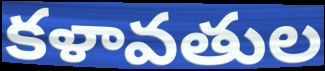
కళావతుల